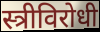
स्त्रीविरोधी